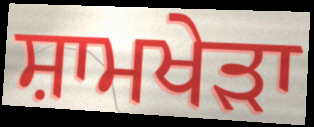
ਸ਼ਾਮਖੇੜਾ